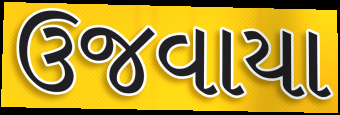
ઉજવાયા